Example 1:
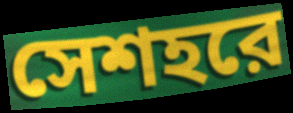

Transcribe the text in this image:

সেশহরে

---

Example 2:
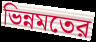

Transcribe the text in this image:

ভিন্নমতের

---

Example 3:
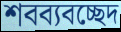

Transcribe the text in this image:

শবব্যবচ্ছেদ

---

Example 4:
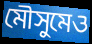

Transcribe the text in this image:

মৌসুমেও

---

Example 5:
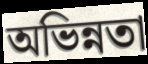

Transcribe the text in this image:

অভিন্নতা